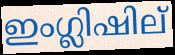
ഇംഗ്ലിഷില്